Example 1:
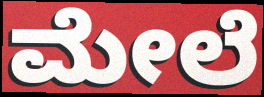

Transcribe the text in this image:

ಮೇಲೆ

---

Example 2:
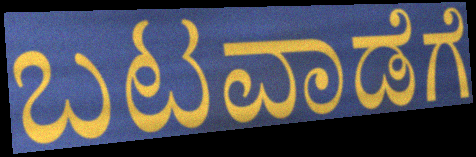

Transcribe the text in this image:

ಬಟವಾಡೆಗೆ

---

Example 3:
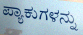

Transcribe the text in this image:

ಪ್ಯಾಕುಗಳನ್ನು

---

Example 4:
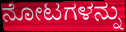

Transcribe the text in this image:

ನೋಟಗಳನ್ನು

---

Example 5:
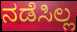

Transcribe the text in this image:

ನಡೆಸಿಲ್ಲ